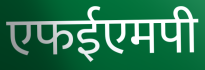
एफईएमपी